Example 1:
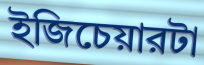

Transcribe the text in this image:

ইজিচেয়ারটা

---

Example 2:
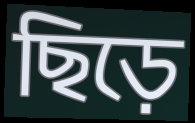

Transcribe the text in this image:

ছিড়ে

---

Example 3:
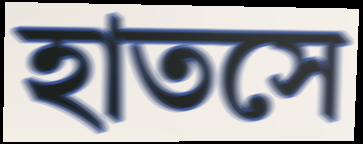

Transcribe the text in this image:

হাতসে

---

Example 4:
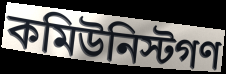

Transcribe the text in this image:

কমিউনিস্টগণ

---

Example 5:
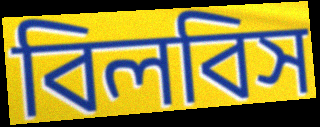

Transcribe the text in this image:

বিলবিস